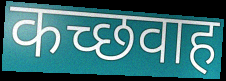
कच्छवाह